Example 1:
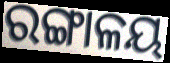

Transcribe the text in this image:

ରଙ୍ଗାଳୟ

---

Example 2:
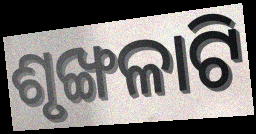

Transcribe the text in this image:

ଶୃଙ୍ଖଳାଟି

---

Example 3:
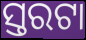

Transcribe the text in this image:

ସ୍ତରଟା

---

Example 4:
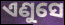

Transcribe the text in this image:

ଏଣୁସେ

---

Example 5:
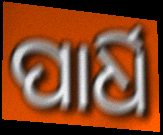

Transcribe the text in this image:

ପାର୍ଧି